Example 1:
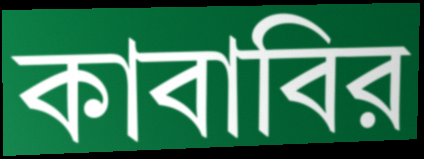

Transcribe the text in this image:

কাবাবির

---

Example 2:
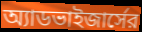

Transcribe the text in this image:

অ্যাডভাইজার্সের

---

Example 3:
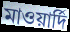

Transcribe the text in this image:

মাওয়ার্দি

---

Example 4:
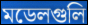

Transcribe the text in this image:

মডেলগুলি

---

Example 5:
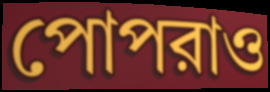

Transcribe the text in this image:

পোপরাও